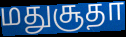
மதுசூதா